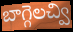
బాగ్గెలచ్వి